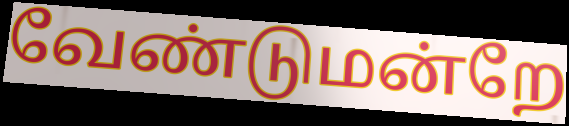
வேண்டுமன்றே